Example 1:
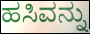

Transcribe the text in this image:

ಹಸಿವನ್ನು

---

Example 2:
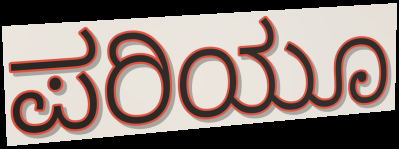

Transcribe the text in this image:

ಪರಿಯೂ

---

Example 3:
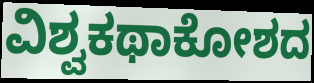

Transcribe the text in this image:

ವಿಶ್ವಕಥಾಕೋಶದ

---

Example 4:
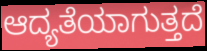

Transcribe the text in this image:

ಆದ್ಯತೆಯಾಗುತ್ತದೆ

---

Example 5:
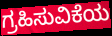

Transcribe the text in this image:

ಗ್ರಹಿಸುವಿಕೆಯ